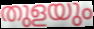
തുളയും